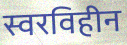
स्वरविहीन